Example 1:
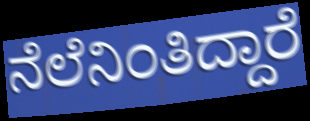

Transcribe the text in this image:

ನೆಲೆನಿಂತಿದ್ದಾರೆ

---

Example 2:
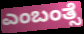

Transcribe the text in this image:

ಎಂಬಂತ್ಸೆ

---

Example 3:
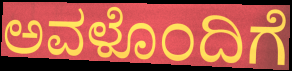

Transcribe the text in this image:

ಅವಳೊಂದಿಗೆ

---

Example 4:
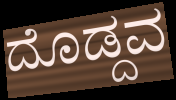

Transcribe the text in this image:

ದೊಡ್ದವ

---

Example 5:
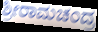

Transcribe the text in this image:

ಶ್ರೀರಾಮಚಂದ್ರ